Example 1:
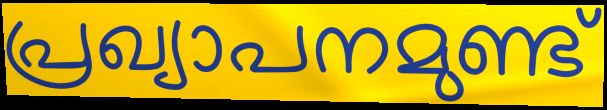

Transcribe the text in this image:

പ്രഖ്യാപനമുണ്ട്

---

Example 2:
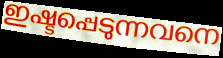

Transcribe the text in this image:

ഇഷ്ടപ്പെടുന്നവനെ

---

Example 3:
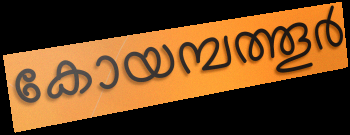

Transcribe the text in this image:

കോയമ്പത്തൂർ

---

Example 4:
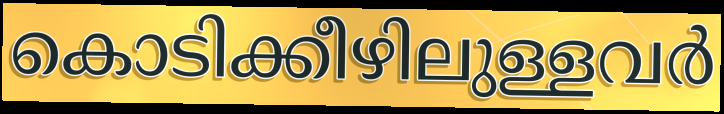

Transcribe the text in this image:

കൊടിക്കീഴിലുള്ളവർ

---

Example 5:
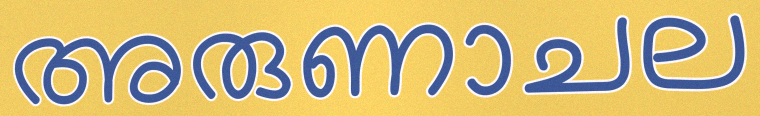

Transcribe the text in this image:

അരുണാചല